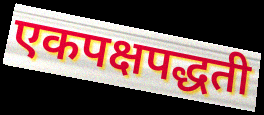
एकपक्षपद्धती